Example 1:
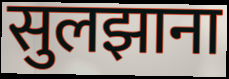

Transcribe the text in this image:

सुलझाना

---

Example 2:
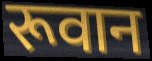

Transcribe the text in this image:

रूवान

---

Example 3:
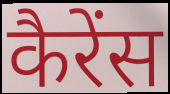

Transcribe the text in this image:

कैरेंस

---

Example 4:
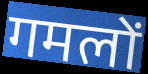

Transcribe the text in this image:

गमलों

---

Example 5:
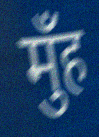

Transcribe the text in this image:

मुँह